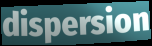
dispersion